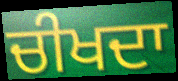
ਚੀਖਦਾ